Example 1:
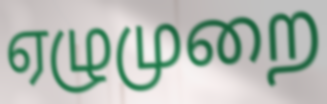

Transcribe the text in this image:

ஏழுமுறை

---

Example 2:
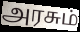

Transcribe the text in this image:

அரசும்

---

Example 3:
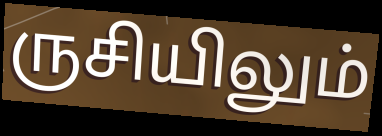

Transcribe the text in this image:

ருசியிலும்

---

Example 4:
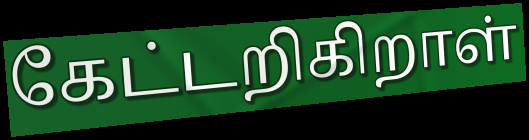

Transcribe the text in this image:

கேட்டறிகிறாள்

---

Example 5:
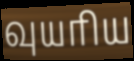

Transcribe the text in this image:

வுயரிய